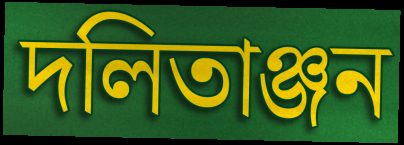
দলিতাঞ্জন